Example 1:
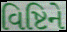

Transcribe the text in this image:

વિષ્ટિને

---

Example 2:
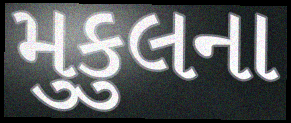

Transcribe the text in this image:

મુકુલના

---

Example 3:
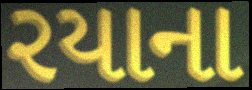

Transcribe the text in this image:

રયાના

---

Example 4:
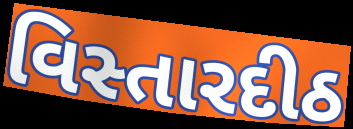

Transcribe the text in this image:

વિસ્તારદીઠ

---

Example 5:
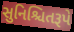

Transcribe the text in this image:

સુનિશ્ચિતરૂપે